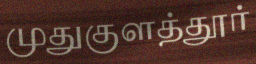
முதுகுளத்தூர்